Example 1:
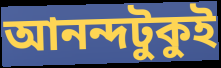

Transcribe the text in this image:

আনন্দটুকুই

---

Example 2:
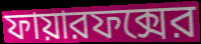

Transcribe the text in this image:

ফায়ারফক্সের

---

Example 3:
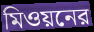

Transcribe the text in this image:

মিওয়নের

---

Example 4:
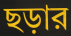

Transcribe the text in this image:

ছড়ার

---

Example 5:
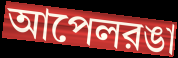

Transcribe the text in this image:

আপেলরঙা